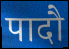
पादौ